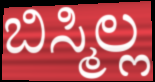
ಬಿಸ್ಮಿಲ್ಲ